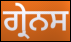
ਗ੍ਰੇਨਸ